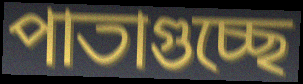
পাতাগুচ্ছে